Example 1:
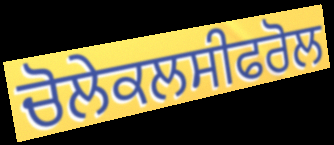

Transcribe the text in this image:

ਚੋਲੇਕਲਸੀਫਰੋਲ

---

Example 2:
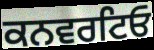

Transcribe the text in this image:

ਕਨਵਰਟਿਓ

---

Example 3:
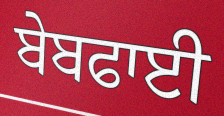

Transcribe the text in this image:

ਬੇਬਫਾਈ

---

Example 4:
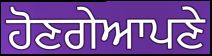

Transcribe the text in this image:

ਹੋਣਗੇਆਪਣੇ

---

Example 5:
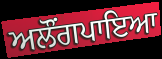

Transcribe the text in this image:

ਅਲੌਂਗਪਾਇਆ